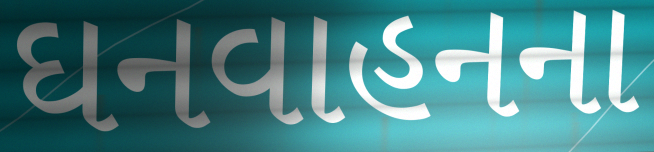
ઘનવાહનના